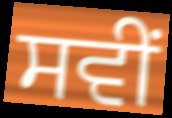
ਸਵੀਂ